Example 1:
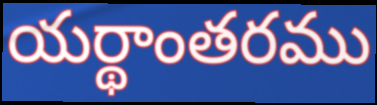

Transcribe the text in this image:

యర్థాంతరము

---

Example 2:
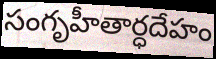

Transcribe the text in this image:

సంగృహీతార్ధదేహం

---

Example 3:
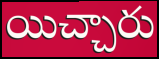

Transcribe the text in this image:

యిచ్చారు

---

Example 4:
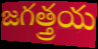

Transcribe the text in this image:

జగత్త్రయ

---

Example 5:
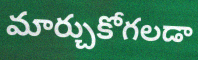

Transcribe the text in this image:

మార్చుకోగలడా